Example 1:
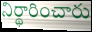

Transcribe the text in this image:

నిర్థారించారు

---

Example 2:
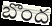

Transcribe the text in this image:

బొంద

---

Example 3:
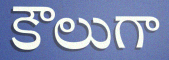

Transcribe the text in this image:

కౌలుగా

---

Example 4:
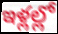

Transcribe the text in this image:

ఇళ్లల్లో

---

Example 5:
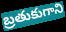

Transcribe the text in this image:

బ్రతుకుగాని